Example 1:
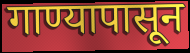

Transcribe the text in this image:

गाण्यापासून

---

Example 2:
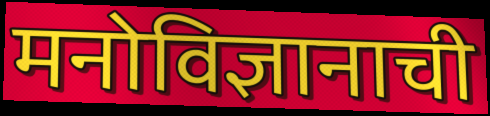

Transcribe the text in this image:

मनोविज्ञानाची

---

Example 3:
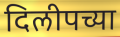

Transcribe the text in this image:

दिलीपच्या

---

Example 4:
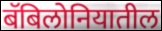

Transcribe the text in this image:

बॅबिलोनियातील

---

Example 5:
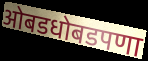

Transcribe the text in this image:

ओबडधोबडपणा